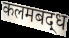
कलमबद्ध